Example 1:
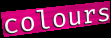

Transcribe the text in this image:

colours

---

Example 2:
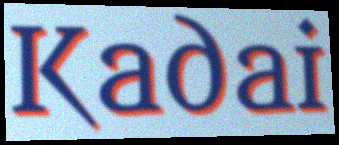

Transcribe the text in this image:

Kadai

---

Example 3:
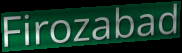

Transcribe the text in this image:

Firozabad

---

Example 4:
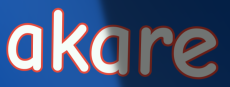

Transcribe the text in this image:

akare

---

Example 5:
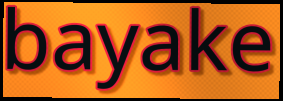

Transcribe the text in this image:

bayake